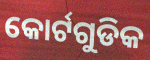
କୋର୍ଟଗୁଡିକ